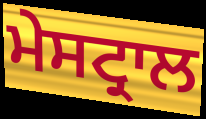
ਮੇਸਟ੍ਰਾਲ